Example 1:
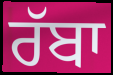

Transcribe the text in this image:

ਰੱਬਾ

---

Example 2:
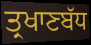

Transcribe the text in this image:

ਤ੍ਰਖਾਣਬੱਧ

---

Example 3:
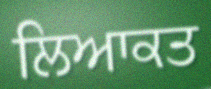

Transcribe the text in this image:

ਲਿਆਕਤ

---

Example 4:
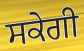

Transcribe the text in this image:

ਸਕੇਗੀ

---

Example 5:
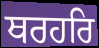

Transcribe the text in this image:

ਥਰਹਰਿ